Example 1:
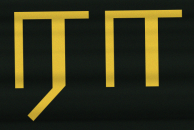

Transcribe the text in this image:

ரா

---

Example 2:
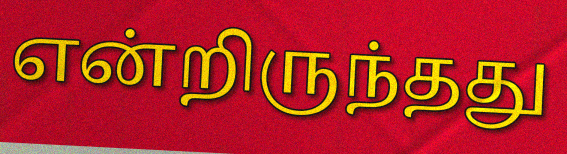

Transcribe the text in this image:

என்றிருந்தது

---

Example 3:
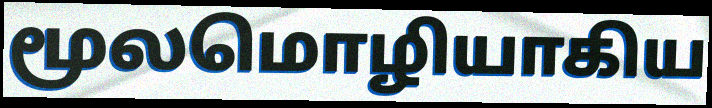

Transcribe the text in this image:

மூலமொழியாகிய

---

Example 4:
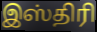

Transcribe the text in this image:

இஸ்திரி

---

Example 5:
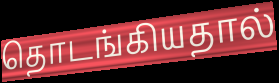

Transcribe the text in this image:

தொடங்கியதால்